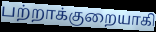
பற்றாக்குறையாகி